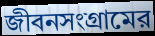
জীবনসংগ্রামের